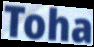
Toha